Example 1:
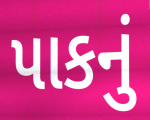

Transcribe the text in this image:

પાકનું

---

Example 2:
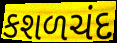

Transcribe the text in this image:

કશળચંદ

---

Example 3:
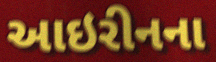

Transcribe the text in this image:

આઇરીનના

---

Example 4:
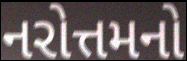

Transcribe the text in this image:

નરોત્તમનો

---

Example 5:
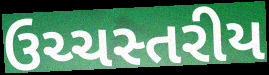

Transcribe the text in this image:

ઉચ્ચસ્તરીય